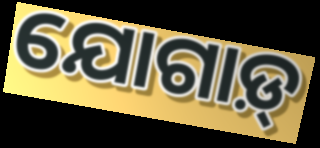
ଯୋଗାଡ଼୍